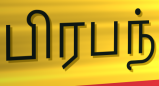
பிரபந்